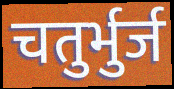
चतुर्भुर्ज